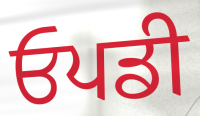
ਓਪਡੀ